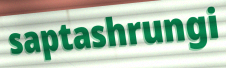
saptashrungi